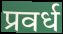
प्रवर्ध